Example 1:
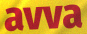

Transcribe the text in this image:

avva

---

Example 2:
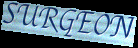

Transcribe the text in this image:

SURGEON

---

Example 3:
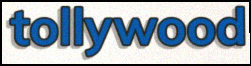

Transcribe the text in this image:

tollywood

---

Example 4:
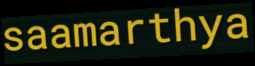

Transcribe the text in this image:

saamarthya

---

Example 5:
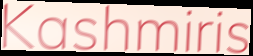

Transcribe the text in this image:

Kashmiris